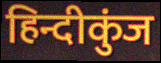
हिन्दीकुंज